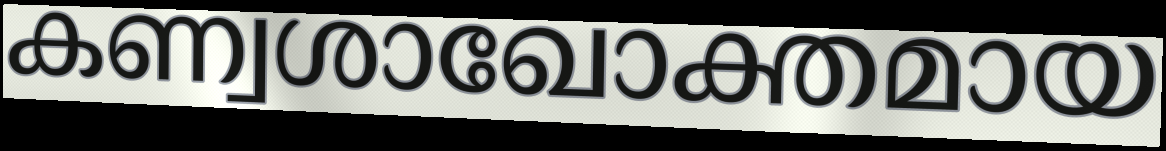
കണ്വശാഖോക്തമായ